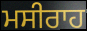
ਮਸੀਰਾਹ